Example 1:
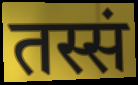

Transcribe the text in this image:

तस्सं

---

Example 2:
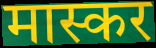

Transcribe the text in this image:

मास्कर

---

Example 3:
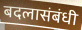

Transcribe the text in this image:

बदलासंबंधी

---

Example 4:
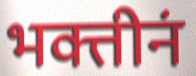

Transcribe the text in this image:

भक्तीनं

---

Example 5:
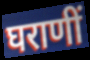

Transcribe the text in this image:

घराणीं